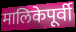
मालिकेपूर्वी